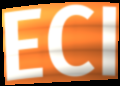
ECI